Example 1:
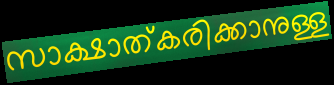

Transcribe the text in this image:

സാക്ഷാത്കരിക്കാനുള്ള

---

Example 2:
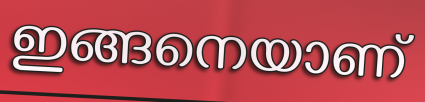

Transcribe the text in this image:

ഇങ്ങനെയാണ്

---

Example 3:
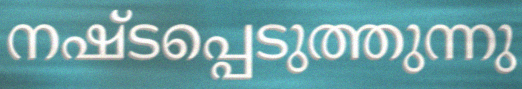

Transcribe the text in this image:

നഷ്ടപ്പെടുത്തുന്നു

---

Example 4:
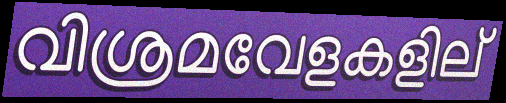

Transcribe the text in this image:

വിശ്രമവേളകളില്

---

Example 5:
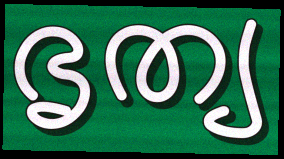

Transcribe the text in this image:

ഭൃത്യ